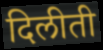
दिलीती